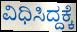
ವಿಧಿಸಿದ್ದಕ್ಕೆ